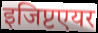
इजिप्टएयर